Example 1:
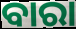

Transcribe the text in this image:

ବାରା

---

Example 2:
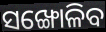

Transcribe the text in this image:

ସଙ୍ଖୋଳିବ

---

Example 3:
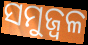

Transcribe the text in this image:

ସମୁଜ୍ୱଳ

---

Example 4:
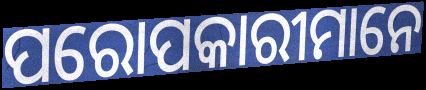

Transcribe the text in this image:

ପରୋପକାରୀମାନେ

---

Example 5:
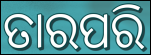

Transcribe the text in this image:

ତାରପରି